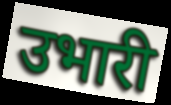
उभारी